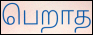
பெறாத